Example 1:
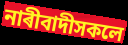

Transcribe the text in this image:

নাৰীবাদীসকলে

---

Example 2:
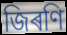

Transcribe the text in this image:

জিৰণি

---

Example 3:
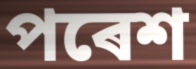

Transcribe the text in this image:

পৰেশ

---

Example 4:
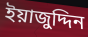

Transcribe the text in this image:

ইয়াজুদ্দিন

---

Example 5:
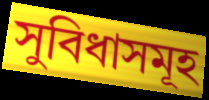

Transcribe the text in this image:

সুবিধাসমূহ